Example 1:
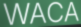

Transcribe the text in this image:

WACA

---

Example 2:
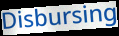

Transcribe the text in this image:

Disbursing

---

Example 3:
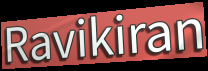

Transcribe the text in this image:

Ravikiran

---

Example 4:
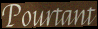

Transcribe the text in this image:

Pourtant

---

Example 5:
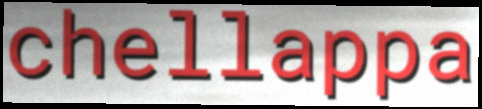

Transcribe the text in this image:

chellappa